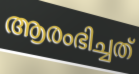
ആരംഭിച്ചത്